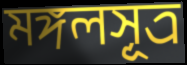
মঙ্গলসূত্র